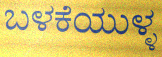
ಬಳಕೆಯುಳ್ಳ